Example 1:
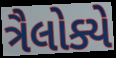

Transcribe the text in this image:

ત્રૈલોક્યે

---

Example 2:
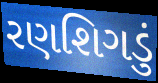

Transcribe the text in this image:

રણશિગડું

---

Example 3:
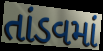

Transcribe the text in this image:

તાંડવમાં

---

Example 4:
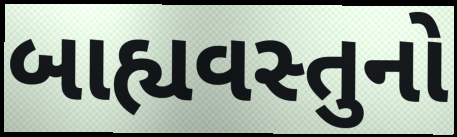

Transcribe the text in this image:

બાહ્યવસ્તુનો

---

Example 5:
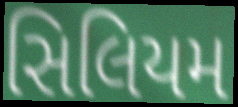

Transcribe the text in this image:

સિલિયમ